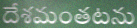
దేశమంతటను